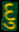
દુ